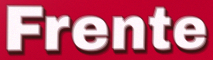
Frente